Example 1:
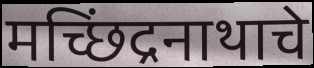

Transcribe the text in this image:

मच्छिंद्रनाथाचे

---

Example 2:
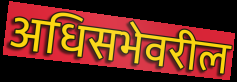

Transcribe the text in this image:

अधिसभेवरील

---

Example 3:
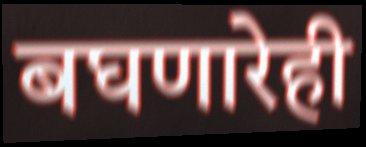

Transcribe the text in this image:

बघणारेही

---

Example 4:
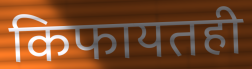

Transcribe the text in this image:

किफायतही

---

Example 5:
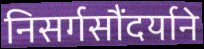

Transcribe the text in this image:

निसर्गसौंदर्याने